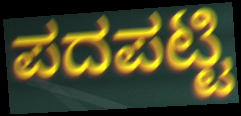
ಪದಪಟ್ಟಿ